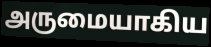
அருமையாகிய